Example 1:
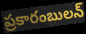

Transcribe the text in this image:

ప్రకారంబులన్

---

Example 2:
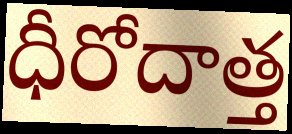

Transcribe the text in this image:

ధీరోదాత్త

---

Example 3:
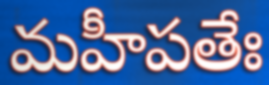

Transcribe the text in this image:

మహీపతేః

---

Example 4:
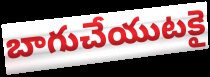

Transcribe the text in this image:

బాగుచేయుటకై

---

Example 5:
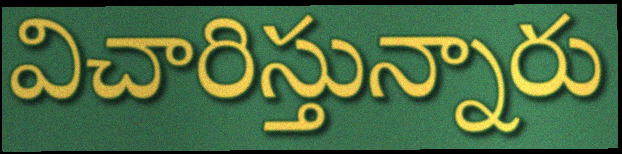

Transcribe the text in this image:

విచారిస్తున్నారు